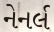
નેનર્લ